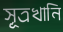
সূত্রখানি